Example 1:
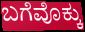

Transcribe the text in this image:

ಬಗೆವೊಕ್ಕು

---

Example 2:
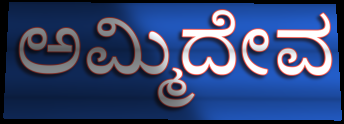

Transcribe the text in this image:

ಅಮ್ಮಿದೇವ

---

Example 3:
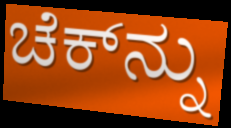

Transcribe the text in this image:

ಚೆಕ್‌ನ್ನು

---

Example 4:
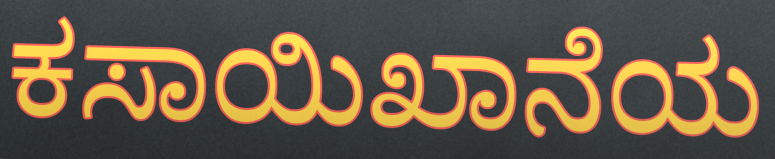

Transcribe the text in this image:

ಕಸಾಯಿಖಾನೆಯ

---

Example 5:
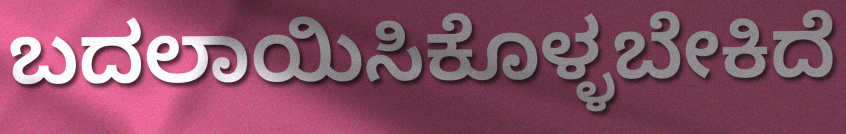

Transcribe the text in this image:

ಬದಲಾಯಿಸಿಕೊಳ್ಳಬೇಕಿದೆ